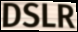
DSLR